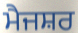
ਮੈਜਸ਼ਰ